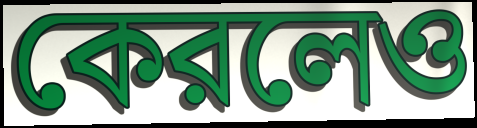
কেরলেও